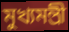
মুখ্যমন্ত্ৰী